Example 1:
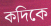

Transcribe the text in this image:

কদিকে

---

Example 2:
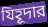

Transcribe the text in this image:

যিহূদার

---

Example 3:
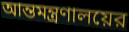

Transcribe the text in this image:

আন্তমন্ত্রণালয়ের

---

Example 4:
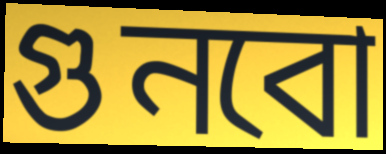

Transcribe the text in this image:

গুনবো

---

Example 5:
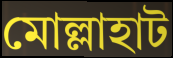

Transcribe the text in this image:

মোল্লাহাট